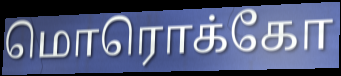
மொரொக்கோ